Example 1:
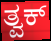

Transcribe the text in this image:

ತ್ವಕ್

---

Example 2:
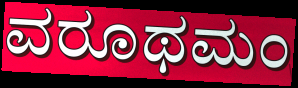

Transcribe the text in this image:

ವರೂಥಮಂ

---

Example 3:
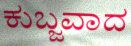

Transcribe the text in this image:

ಕುಬ್ಜವಾದ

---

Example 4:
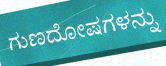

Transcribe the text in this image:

ಗುಣದೋಷಗಳನ್ನು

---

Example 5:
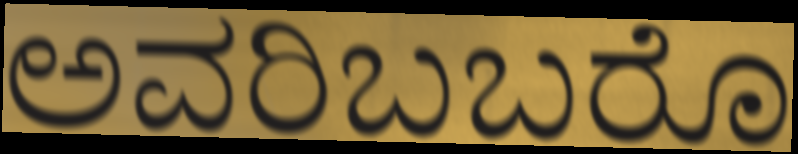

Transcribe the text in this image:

ಅವರಿಬಬರೊ